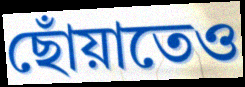
ছোঁয়াতেও